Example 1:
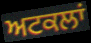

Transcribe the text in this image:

ਅਟਕਲਾਂ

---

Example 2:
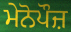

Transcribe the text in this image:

ਮੇਨੋਪੌਜ਼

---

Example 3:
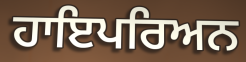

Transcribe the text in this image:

ਹਾਇਪਰਿਅਨ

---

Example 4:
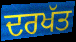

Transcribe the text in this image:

ਦਰਖੱਤ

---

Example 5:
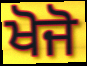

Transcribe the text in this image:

ਖੋਜੋ